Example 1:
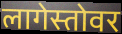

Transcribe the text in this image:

लागेस्तोवर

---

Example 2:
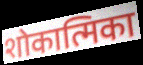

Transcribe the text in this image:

शोकात्मिका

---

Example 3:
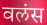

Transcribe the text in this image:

वलंस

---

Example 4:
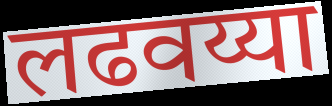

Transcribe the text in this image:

लढवय्या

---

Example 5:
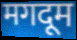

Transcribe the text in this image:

मगदूम